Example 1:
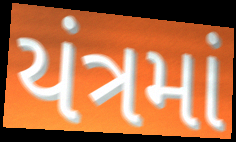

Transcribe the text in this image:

યંત્રમાં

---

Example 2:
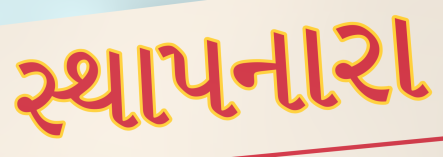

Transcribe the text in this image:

સ્થાપનારા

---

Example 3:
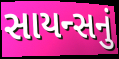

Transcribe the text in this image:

સાયન્સનું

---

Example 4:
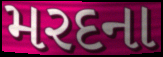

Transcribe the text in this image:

મરદના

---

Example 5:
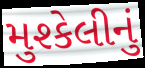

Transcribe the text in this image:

મુશ્કેલીનું